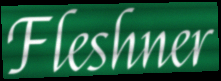
Fleshner